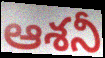
ఆశనీ